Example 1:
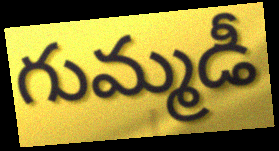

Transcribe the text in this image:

గుమ్మడీ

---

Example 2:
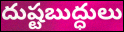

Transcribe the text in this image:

దుష్టబుద్ధులు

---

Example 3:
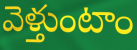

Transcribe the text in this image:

వెళ్తుంటాం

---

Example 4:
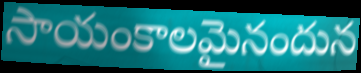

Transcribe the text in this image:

సాయంకాలమైనందున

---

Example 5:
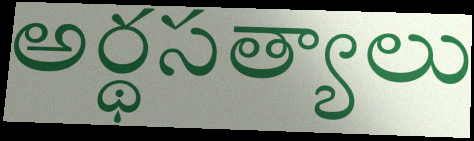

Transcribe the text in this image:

అర్థసత్యాలు